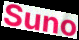
Suno